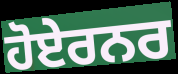
ਹੋਏਰਨਰ